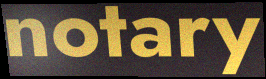
notary